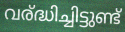
വര്ദ്ധിച്ചിട്ടുണ്ട്